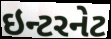
ઇન્ટરનેટ